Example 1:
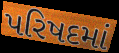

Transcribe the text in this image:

પરિષદમાં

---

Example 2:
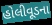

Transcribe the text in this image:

હોલીવૂડના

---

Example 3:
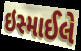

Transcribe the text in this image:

ઇસ્માઈલે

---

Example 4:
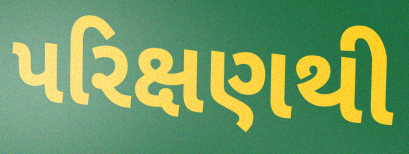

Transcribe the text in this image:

પરિક્ષણથી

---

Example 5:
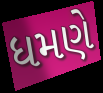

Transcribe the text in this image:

ધમણે